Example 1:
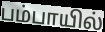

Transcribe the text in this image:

பம்பாயில்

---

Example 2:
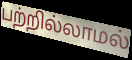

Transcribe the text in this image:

பற்றில்லாமல்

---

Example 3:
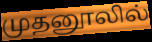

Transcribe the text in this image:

முதனூலில்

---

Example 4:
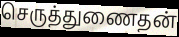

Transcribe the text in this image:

செருத்துணைதன்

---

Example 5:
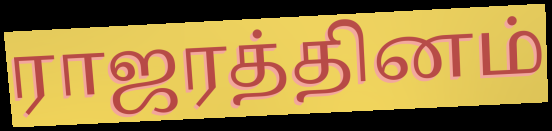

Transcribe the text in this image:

ராஜரத்தினம்